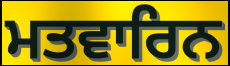
ਮਤਵਾਰਿਨ